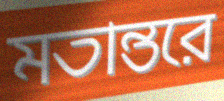
মতান্তরে